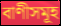
বাণীসমূহ